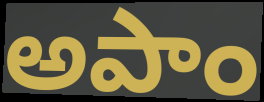
అపాం